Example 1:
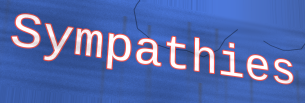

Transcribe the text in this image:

Sympathies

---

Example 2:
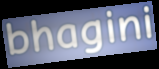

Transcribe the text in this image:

bhagini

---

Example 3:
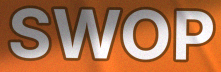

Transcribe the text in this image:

SWOP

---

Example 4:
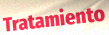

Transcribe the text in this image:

Tratamiento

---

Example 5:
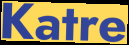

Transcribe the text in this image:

Katre